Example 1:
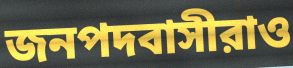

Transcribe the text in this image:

জনপদবাসীরাও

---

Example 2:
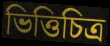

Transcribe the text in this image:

ভিত্তিচিত্র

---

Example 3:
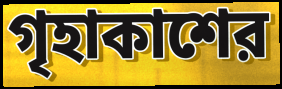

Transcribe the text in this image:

গৃহাকাশের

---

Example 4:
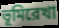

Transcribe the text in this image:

ভূমিরেখা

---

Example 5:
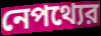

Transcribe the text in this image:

নেপথ্যের